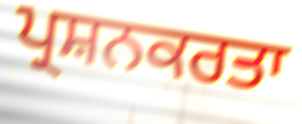
ਪ੍ਰਸ਼ਨਕਰਤਾ